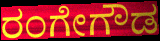
ರಂಗೇಗೌಡ